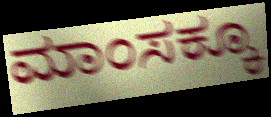
ಮಾಂಸಕ್ಕೂ